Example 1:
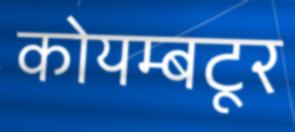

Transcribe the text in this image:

कोयम्‍बटूर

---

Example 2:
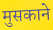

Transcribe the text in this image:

मुसकाने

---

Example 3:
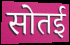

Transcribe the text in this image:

सोतई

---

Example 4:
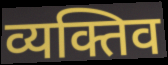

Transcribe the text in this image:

व्यक्तिव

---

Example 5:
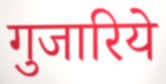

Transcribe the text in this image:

गुजारिये